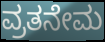
ವ್ರತನೇಮ